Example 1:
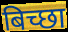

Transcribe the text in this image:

बिच्छा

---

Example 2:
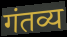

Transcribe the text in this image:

गंतव्य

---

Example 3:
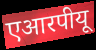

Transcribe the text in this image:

एआरपीयू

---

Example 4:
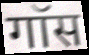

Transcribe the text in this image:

गॉस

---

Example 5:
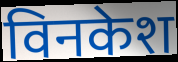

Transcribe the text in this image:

विनकेश